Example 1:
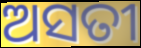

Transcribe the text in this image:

ଅସତୀ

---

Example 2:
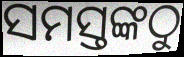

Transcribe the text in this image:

ସମସ୍ତଙ୍କଠୁ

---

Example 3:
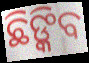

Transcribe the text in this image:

ଛିଙ୍କିବ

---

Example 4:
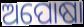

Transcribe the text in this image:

ଅପୋଷା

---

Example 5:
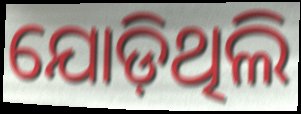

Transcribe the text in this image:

ଯୋଡ଼ିଥିଲି